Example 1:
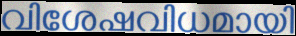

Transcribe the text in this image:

വിശേഷവിധമായി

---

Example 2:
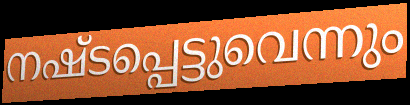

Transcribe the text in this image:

നഷ്ടപ്പെട്ടുവെന്നും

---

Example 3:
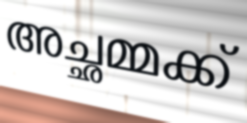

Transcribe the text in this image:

അച്ഛമ്മക്ക്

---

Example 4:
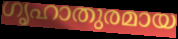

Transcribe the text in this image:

ഗൃഹാതുരമായ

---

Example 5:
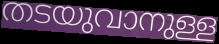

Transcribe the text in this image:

തടയുവാനുള്ള